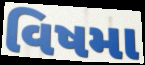
વિષમા